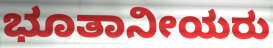
ಭೂತಾನೀಯರು